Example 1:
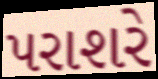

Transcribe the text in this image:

પરાશરે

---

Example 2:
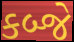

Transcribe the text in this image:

કબ્જે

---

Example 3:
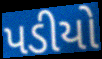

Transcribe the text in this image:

પડીયો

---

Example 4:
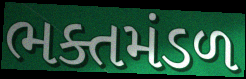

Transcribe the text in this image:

ભક્તમંડળ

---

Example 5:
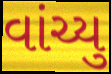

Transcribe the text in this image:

વાંચ્યુ